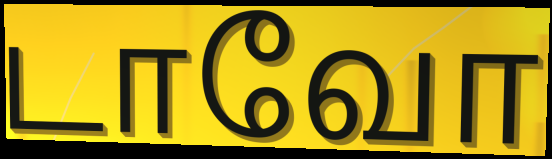
டாவோ